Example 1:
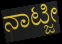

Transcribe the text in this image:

ನಾಟ್ಜೀ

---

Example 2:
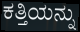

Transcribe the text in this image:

ಕತ್ತಿಯನ್ನು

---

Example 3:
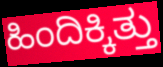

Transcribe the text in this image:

ಹಿಂದಿಕ್ಕಿತ್ತು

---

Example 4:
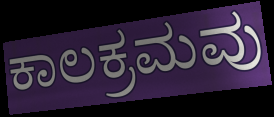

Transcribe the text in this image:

ಕಾಲಕ್ರಮವು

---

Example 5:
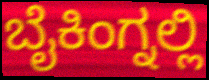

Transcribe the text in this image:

ಬೈಕಿಂಗ್ನಲ್ಲಿ